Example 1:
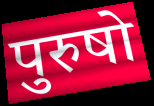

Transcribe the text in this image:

पुरुषो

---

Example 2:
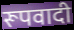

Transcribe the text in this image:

रूपवादी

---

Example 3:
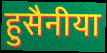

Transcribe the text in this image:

हुसैनीया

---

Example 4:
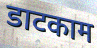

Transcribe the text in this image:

डाटकाम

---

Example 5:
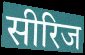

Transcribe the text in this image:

सीरिज